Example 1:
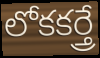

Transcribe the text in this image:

లోకకర్త్రే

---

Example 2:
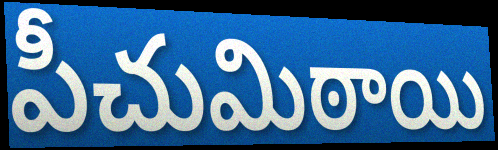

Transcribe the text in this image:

పీచుమిఠాయి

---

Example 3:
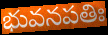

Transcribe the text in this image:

భువనపతిః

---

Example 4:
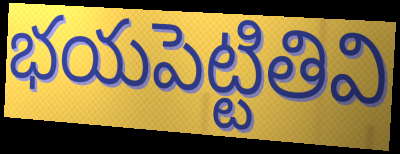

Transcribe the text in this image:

భయపెట్టితివి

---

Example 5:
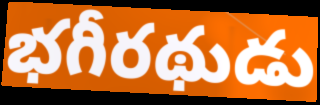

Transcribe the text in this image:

భగీరథుడు